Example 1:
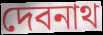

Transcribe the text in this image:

দেবনাথ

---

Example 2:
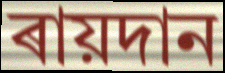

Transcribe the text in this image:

ৰায়দান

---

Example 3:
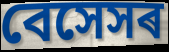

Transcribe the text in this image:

বেসেসৰ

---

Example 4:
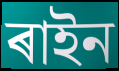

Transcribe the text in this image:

ৰাইন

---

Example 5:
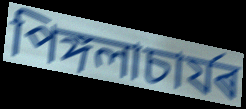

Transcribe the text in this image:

পিঙ্গলাচাৰ্যৰ